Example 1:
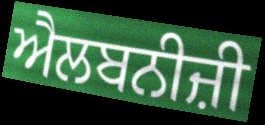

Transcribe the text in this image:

ਐਲਬਨੀਜ਼ੀ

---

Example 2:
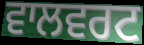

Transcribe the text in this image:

ਵਾਲਵਰਟ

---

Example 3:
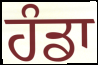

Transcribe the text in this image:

ਹੰਡਾ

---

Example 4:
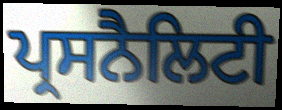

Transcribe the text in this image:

ਪ੍ਰਸਨੈਲਿਟੀ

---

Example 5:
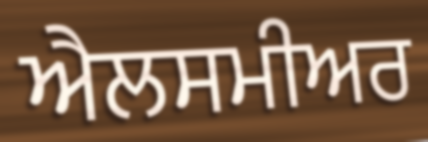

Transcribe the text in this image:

ਐਲਸਮੀਅਰ